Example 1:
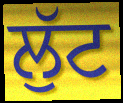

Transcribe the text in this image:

ਲੁੱਟ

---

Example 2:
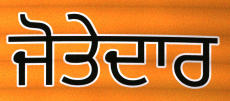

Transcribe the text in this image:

ਜੋਤੇਦਾਰ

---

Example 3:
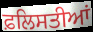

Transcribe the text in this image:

ਫ਼ਲਿਸਤੀਆਂ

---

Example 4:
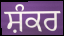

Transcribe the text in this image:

ਸ਼ੰਕਰ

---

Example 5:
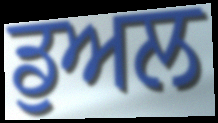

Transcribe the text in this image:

ਡੁਅਲ